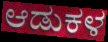
ಆಡುಕಳ